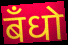
बँधो